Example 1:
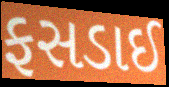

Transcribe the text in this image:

ફસડાઈ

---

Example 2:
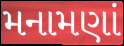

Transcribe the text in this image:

મનામણાં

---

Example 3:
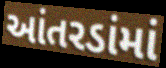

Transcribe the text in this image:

આંતરડાંમાં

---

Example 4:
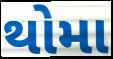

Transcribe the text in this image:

થોમા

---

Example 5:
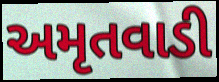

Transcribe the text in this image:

અમૃતવાડી